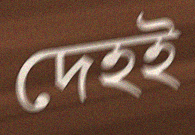
দেহই